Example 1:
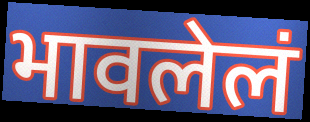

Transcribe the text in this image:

भावलेलं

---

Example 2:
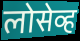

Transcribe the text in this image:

लोसेव्ह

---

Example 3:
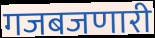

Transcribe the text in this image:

गजबजणारी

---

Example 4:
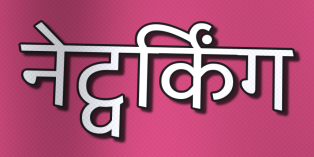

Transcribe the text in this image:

नेट्वर्किंग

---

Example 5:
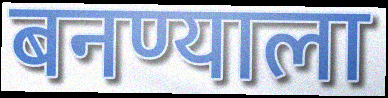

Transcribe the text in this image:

बनण्याला